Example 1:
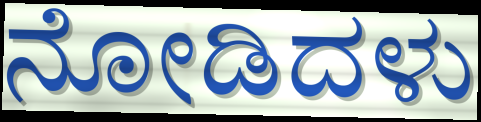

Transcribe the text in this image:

ನೋಡಿದಳು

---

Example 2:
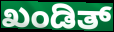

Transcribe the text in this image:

ಖಂಡಿತ್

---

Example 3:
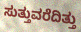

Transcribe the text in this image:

ಸುತ್ತುವರೆದಿತ್ತು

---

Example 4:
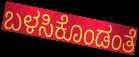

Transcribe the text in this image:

ಬಳಸಿಕೊಂಡಂತೆ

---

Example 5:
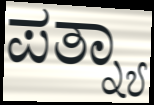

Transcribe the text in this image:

ಪತ್ನ್ಯಾ